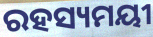
ରହସ୍ୟମୟୀ